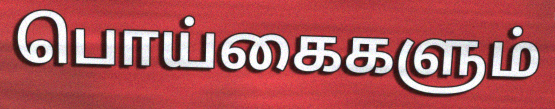
பொய்கைகளும்